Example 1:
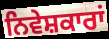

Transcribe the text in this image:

ਨਿਵੇਸ਼ਕਾਰਾਂ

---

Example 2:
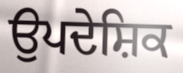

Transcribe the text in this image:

ਉਪਦੇਸ਼ਿਕ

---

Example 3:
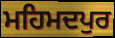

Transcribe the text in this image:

ਮਹਿਮਦਪੁਰ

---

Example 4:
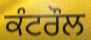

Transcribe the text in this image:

ਕੰਟਰੌਲ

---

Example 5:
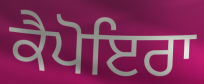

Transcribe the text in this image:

ਕੈਪੋਇਰਾ